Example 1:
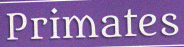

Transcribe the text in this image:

Primates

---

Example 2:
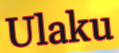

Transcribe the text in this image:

Ulaku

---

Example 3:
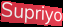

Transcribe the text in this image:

Supriyo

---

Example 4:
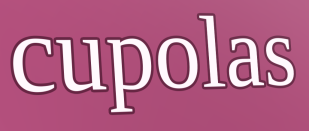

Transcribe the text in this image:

cupolas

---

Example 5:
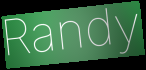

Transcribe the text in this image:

Randy